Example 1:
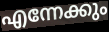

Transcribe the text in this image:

എന്നേക്കും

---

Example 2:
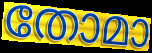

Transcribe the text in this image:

തോമാ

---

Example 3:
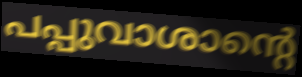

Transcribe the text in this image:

പപ്പുവാശാന്റെ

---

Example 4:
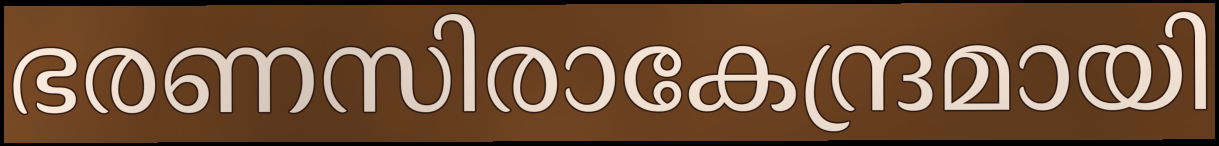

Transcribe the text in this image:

ഭരണസിരാകേന്ദ്രമായി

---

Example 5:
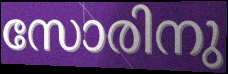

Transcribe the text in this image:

സോരിനു